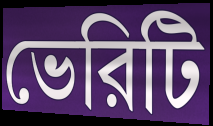
ভেরিটি